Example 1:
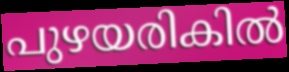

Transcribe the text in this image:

പുഴയരികിൽ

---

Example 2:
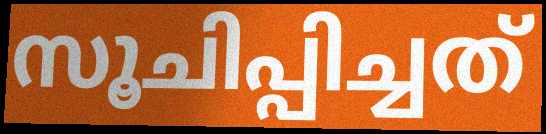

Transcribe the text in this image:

സൂചിപ്പിച്ചത്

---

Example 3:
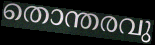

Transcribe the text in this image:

തൊന്തരവു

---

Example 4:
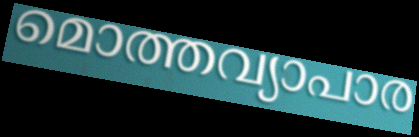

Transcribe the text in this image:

മൊത്തവ്യാപാര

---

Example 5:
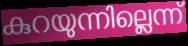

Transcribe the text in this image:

കുറയുന്നില്ലെന്ന്